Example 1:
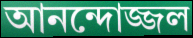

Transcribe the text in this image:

আনন্দোজ্জল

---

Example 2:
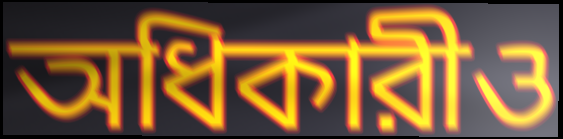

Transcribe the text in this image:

অধিকারীও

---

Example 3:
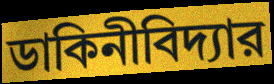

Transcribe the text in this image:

ডাকিনীবিদ্যার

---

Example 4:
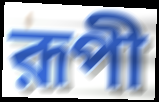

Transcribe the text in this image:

রূপী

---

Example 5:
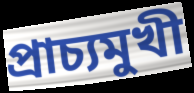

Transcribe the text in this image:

প্রাচ্যমুখী